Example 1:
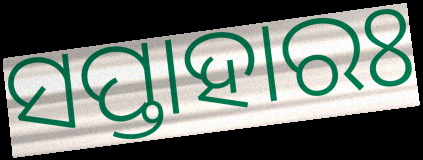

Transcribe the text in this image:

ସପ୍ତାହାରଃ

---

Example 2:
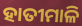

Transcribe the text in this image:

ହାତୀମାଳି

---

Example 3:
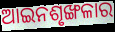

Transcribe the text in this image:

ଆଇନଶୃଙ୍ଖଳାର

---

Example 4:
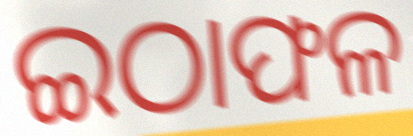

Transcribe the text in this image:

ଇଠାଫଳ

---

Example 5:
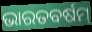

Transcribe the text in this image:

ଭାରତବର୍ଷମ୍